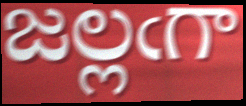
జల్లఁగా